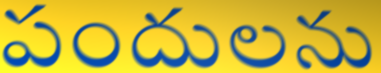
పందులను